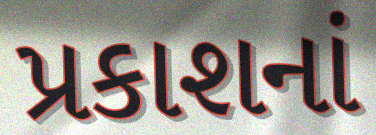
પ્રકાશનાં